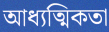
আধ্যত্মিকতা